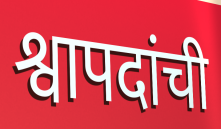
श्वापदांची